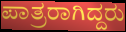
ಪಾತ್ರರಾಗಿದ್ದರು